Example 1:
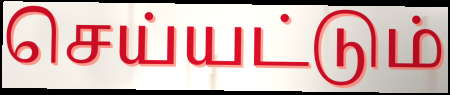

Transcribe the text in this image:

செய்யட்டும்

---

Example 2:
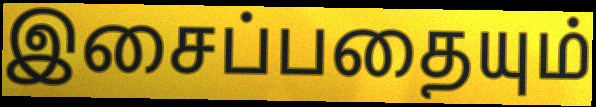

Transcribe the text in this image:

இசைப்பதையும்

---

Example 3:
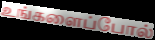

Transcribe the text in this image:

உங்களைப்போல்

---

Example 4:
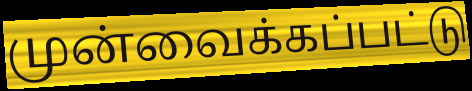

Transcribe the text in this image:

முன்வைக்கப்பட்டு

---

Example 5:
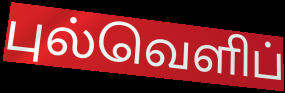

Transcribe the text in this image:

புல்வெளிப்